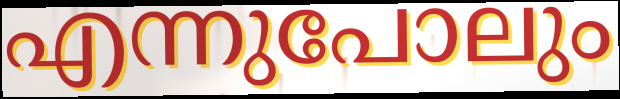
എന്നുപോലും